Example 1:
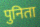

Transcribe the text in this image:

पुनिता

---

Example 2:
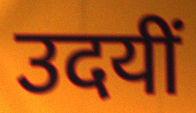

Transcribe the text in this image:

उदयीं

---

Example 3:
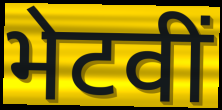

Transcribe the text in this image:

भेटवीं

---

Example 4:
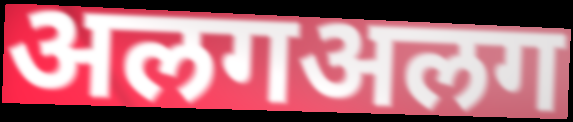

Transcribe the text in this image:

अलगअलग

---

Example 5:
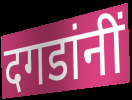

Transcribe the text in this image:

दगडांनीं